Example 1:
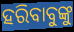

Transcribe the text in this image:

ହରିବାବୁଙ୍କୁ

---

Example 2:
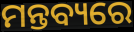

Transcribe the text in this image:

ମନ୍ତବ୍ୟରେ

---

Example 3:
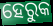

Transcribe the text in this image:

ହେରୁକ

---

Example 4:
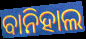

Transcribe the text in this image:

ବାନିହାଲ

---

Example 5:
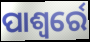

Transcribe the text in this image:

ପାଶ୍ୱର୍ରେ